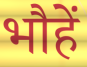
भौहें